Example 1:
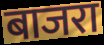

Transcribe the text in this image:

बाजरा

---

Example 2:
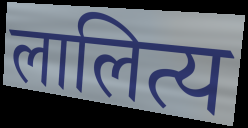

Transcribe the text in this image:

लालित्य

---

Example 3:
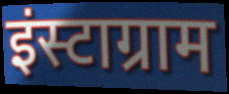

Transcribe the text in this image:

इंस्टाग्राम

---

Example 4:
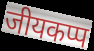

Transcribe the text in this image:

जीयकप्प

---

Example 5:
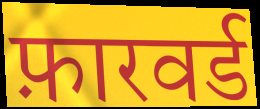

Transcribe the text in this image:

फ़ारवर्ड